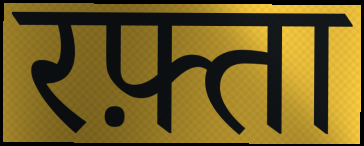
रफ़्ता